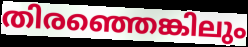
തിരഞ്ഞെങ്കിലും